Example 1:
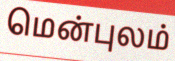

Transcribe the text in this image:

மென்புலம்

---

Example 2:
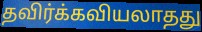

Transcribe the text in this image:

தவிர்க்கவியலாதது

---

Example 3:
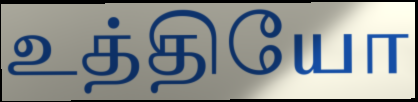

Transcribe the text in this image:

உத்தியோ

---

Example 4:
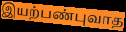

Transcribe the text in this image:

இயற்பண்புவாத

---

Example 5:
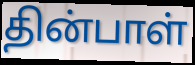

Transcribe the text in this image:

தின்பாள்